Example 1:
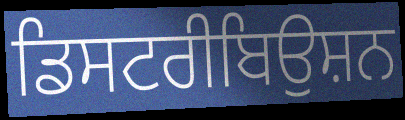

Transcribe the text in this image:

ਡਿਸਟਰੀਬਿਉਸ਼ਨ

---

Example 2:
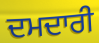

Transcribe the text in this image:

ਦਮਦਾਰੀ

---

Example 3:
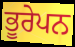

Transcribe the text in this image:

ਭੂਰੇਪਨ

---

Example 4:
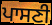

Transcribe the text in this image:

ਪਾਸਣੀ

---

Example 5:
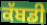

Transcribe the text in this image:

ਕੱਬਡੀ